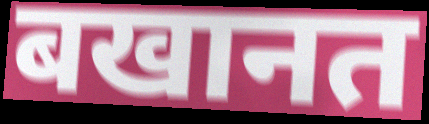
बखानत